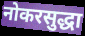
नोकरसुद्धा